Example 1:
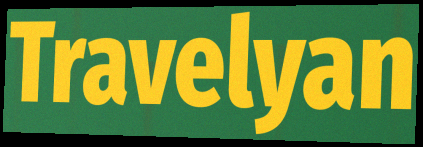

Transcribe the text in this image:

Travelyan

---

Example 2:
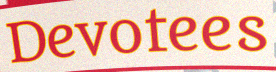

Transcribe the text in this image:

Devotees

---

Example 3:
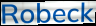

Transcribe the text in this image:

Robeck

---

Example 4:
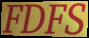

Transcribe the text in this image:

FDFS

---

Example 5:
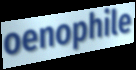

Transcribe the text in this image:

oenophile